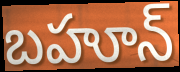
బహూన్